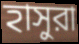
হাসুরা